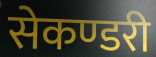
सेकण्‍डरी